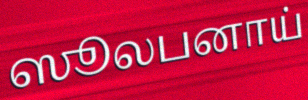
ஸூலபனாய்